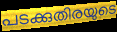
പടക്കുതിരയുടെ